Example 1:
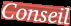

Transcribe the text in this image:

Conseil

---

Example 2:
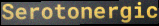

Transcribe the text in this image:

Serotonergic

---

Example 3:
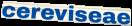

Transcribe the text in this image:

cereviseae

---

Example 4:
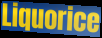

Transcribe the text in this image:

Liquorice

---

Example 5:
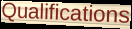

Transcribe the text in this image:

Qualifications